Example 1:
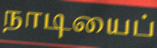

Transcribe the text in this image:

நாடியைப்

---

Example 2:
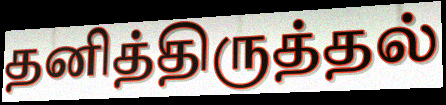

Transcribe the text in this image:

தனித்திருத்தல்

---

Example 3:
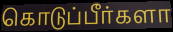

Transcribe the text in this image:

கொடுப்பீர்களா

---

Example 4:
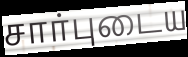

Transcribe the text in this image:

சார்புடைய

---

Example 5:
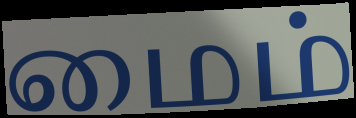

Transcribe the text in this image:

மைம்